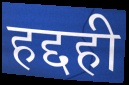
हद्दही